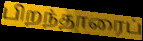
பிறந்தாரைப்